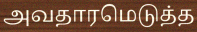
அவதாரமெடுத்த